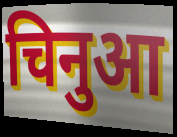
चिनुआ